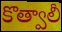
కొత్వాలీ